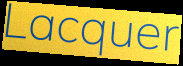
Lacquer